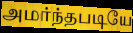
அமர்ந்தபடியே